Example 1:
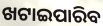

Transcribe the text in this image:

ଖଟାଇପାରିବ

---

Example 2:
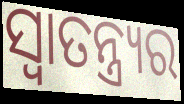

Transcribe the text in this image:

ସ୍ଵାତନ୍ତ୍ର୍ୟର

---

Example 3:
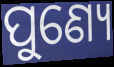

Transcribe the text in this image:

ପୁଣ୍ୟେ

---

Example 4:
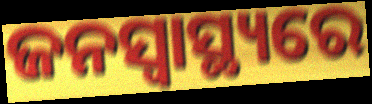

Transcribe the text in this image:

ଜନସ୍ଵାସ୍ଥ୍ୟରେ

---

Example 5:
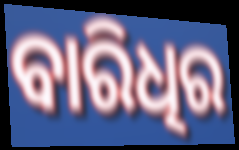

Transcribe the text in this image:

ବାରିଧିର